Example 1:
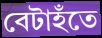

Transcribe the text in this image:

বেটাহঁতে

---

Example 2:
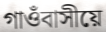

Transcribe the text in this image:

গাওঁবাসীয়ে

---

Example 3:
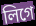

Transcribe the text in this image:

লিগে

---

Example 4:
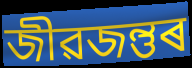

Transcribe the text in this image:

জীৱজন্তুৰ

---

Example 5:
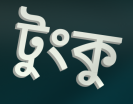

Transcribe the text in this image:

টুংকু